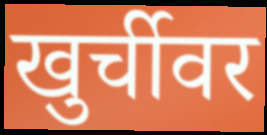
खुर्चीवर